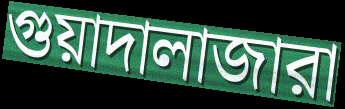
গুয়াদালাজারা